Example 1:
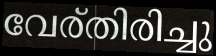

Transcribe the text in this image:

വേര്തിരിച്ചു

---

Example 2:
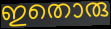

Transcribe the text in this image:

ഇതൊരു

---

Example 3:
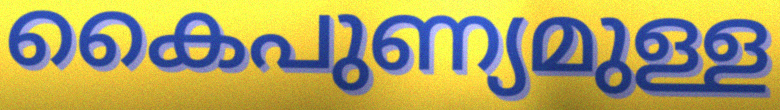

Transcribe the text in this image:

കൈപുണ്യമുള്ള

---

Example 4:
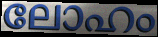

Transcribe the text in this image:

ലോഹം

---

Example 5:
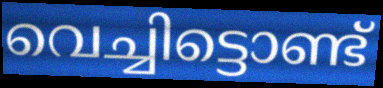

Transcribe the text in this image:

വെച്ചിട്ടൊണ്ട്